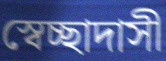
স্বেচ্ছাদাসী